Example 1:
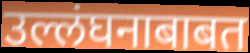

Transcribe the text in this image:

उल्लंघनाबाबत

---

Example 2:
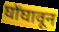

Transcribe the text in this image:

घोंघावून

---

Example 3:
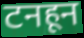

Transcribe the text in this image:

टनहून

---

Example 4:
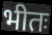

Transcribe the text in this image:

भीतः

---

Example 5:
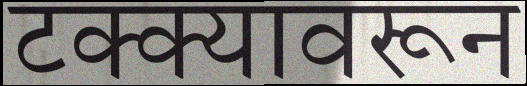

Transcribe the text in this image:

टक्क्यावरून